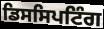
ਡਿਸਸਿਪਟਿੰਗ